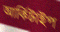
আৰ্কিটাইপ